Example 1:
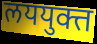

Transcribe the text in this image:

लययुक्त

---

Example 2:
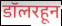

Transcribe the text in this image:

डॉलरहून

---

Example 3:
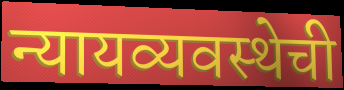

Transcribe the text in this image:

न्यायव्यवस्थेची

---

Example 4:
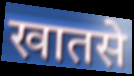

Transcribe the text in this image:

खातसे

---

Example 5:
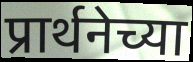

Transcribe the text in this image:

प्रार्थनेच्या